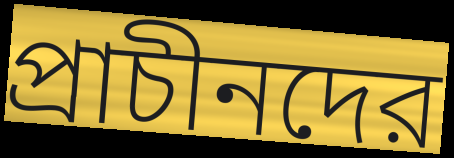
প্রাচীনদের